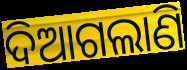
ଦିଆଗଲାଣି